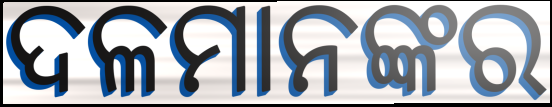
ଦଳମାନଙ୍କର